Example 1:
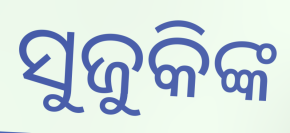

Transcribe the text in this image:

ସୁଜୁକିଙ୍କ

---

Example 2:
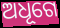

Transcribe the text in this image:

ଅଧୂଗେ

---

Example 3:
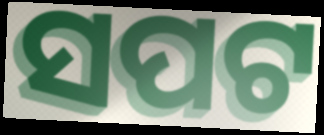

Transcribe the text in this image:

ସପଟ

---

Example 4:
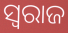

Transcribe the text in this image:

ସ୍ବରାଜ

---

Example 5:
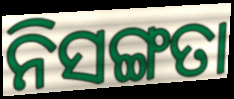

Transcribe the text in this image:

ନିସଙ୍ଗତା